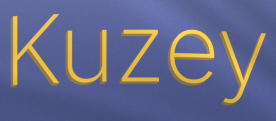
Kuzey